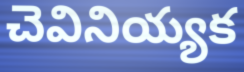
చెవినియ్యక